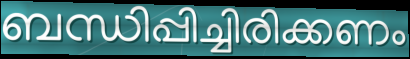
ബന്ധിപ്പിച്ചിരിക്കണം